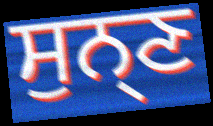
ਸੁਨ੍ਣ